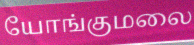
யோங்குமலை